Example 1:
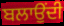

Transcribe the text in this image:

ਬਲਾਉਂਦੀ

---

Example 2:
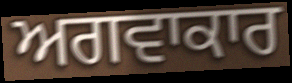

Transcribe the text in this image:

ਅਗਵਾਕਾਰ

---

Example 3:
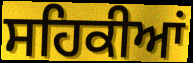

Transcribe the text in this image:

ਸਹਿਕੀਆਂ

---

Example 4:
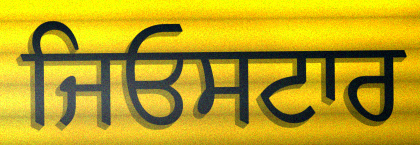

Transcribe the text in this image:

ਜਿਓਸਟਾਰ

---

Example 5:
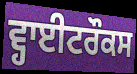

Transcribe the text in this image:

ਵ੍ਹਾਈਟਰੌਕਸ